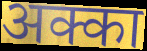
अक्का